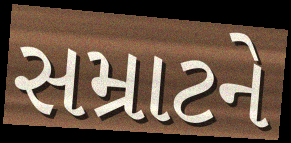
સમ્રાટને